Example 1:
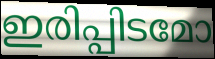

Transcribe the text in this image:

ഇരിപ്പിടമോ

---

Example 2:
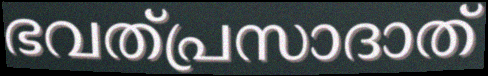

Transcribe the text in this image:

ഭവത്പ്രസാദാത്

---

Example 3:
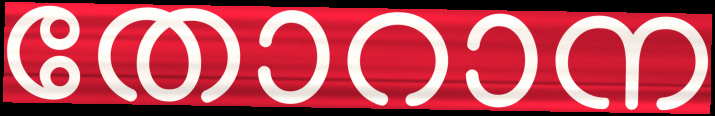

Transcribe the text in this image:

തോറാന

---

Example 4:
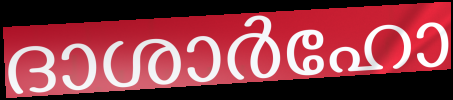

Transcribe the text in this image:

ദാശാർഹോ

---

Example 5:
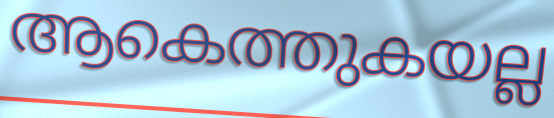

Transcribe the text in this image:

ആകെത്തുകയല്ല